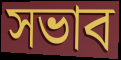
সভাব